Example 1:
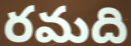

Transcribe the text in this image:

రమది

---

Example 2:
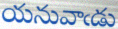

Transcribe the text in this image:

యనువాఁడు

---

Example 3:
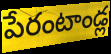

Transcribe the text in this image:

పేరంటాండ్ల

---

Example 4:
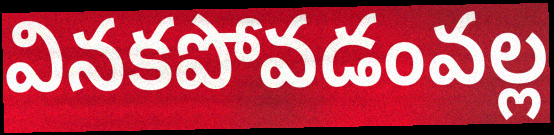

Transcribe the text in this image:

వినకపోవడంవల్ల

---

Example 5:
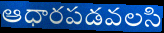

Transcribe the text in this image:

ఆధారపడవలసి